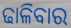
ଢାଳିବାର